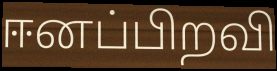
ஈனப்பிறவி